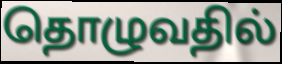
தொழுவதில்